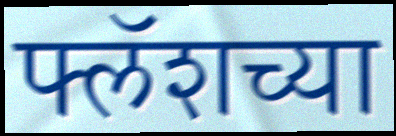
फ्लॅशच्या